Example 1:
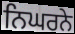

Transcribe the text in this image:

ਨਿਘਰਨੇ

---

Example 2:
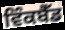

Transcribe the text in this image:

ਵਿੰਕਬੈੱਡ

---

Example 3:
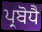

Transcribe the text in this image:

ਪ੍ਰਬੋਧੈ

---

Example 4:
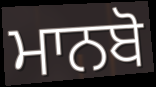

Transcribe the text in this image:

ਮਾਨਬੋ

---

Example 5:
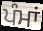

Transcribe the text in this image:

ਪੰਮਾਂ